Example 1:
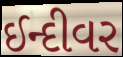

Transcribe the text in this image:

ઈન્દીવર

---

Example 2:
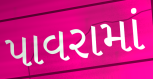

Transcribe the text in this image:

પાવરામાં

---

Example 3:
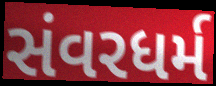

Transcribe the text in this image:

સંવરધર્મ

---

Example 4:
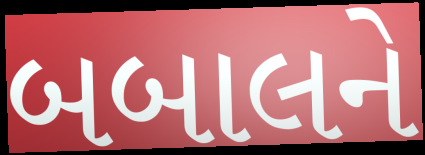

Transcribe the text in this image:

બબાલને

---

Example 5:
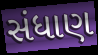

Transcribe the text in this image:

સંધાણ